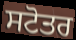
ਸਟੋਤਰ